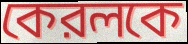
কেরলকে